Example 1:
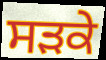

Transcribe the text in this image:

ਸਡ਼ਕੇ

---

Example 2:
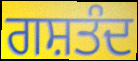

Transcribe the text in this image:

ਗਸ਼ਤੰਦ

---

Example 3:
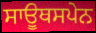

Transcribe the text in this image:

ਸਾਊਥਸਪੇਨ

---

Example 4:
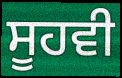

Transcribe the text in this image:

ਸੂਹਵੀ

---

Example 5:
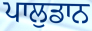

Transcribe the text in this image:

ਪਾਲੁਡਾਨ